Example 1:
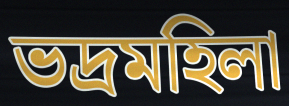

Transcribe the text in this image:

ভদ্রমহিলা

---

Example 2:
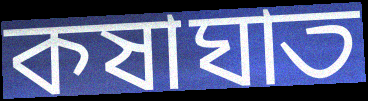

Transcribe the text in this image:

কষাঘাত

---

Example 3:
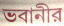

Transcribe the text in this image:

ভবানীর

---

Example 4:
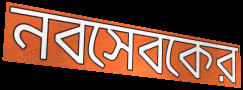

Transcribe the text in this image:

নবসেবকের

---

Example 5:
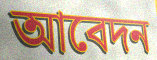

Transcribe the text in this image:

আবেদন